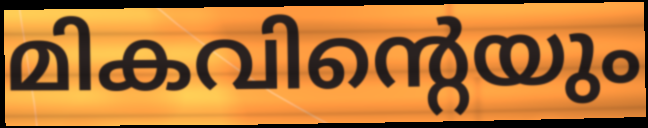
മികവിന്റെയും